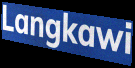
Langkawi